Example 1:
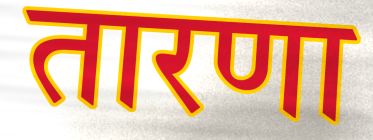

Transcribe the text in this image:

तारणा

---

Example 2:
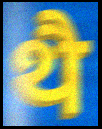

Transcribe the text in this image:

थै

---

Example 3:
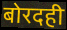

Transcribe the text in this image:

बोरदही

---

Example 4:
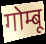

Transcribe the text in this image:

गोम्बू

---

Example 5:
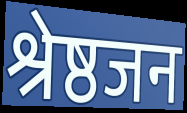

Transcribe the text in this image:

श्रेष्ठजन